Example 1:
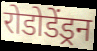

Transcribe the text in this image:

रोडोडेंड्रन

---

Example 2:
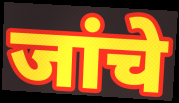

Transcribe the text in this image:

जांचे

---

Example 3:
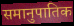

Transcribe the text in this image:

समानुपातिक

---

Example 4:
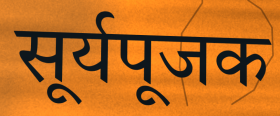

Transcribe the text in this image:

सूर्यपूजक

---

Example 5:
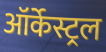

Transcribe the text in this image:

ऑर्केस्ट्रल